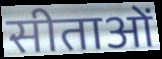
सीताओं